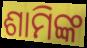
ଶାମିଙ୍କ